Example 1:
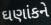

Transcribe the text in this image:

ઘણાંકને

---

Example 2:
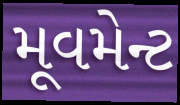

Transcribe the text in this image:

મૂવમેન્ટ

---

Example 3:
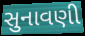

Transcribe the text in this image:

સુનાવણી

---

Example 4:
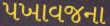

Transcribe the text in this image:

પખાવજના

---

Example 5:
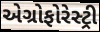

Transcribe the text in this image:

એગ્રોફોરેસ્ટ્રી